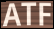
ATF